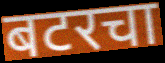
बटरचा